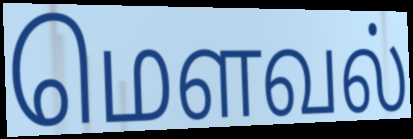
மௌவல்